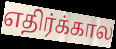
எதிர்க்கால